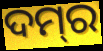
ଦମ୍‌ର